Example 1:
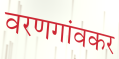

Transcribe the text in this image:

वरणगांवकर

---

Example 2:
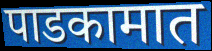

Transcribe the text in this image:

पाडकामात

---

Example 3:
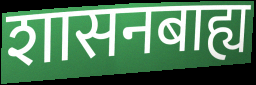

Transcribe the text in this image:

शासनबाह्य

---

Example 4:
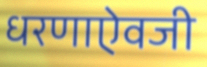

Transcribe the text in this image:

धरणाऐवजी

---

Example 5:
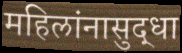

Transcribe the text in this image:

महिलांनासुद्धा